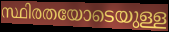
സ്ഥിരതയോടെയുള്ള